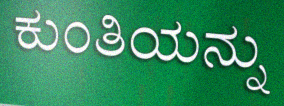
ಕುಂತಿಯನ್ನು